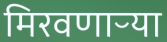
मिरवणाऱ्या